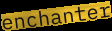
enchanter